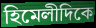
হিমেলীদিকে